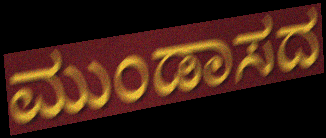
ಮುಂಡಾಸದ